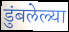
डुंबलेल्या